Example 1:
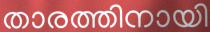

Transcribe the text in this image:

താരത്തിനായി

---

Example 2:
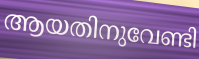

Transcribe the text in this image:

ആയതിനുവേണ്ടി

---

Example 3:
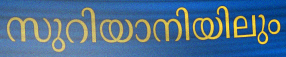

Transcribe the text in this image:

സുറിയാനിയിലും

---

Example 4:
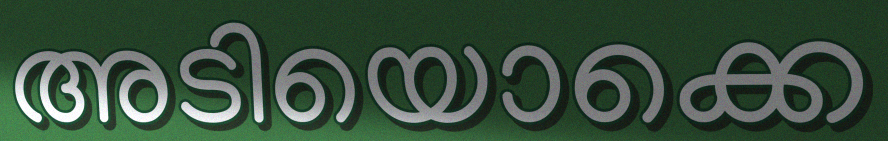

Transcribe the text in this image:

അടിയൊക്കെ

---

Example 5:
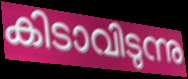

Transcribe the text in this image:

കിടാവിടുന്നു